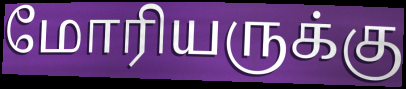
மோரியருக்கு